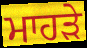
ਮਾਹੜੇ